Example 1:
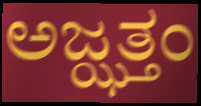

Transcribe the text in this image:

ಅಜ್ಝತ್ತಂ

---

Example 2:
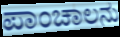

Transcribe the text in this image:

ಪಾಂಚಾಲನು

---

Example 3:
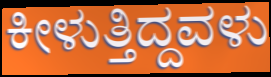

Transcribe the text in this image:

ಕೀಳುತ್ತಿದ್ದವಳು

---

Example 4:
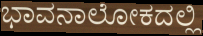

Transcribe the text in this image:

ಭಾವನಾಲೋಕದಲ್ಲಿ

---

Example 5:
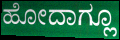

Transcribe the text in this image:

ಹೋದಾಗ್ಲೂ